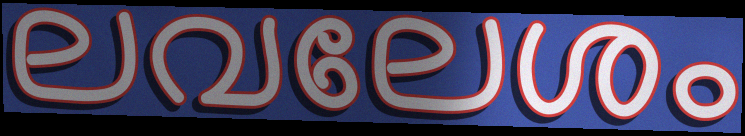
ലവലേശം